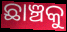
ଛାଞ୍ଚକୁ